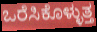
ಒರೆಸಿಕೊಳ್ಳುತ್ತ